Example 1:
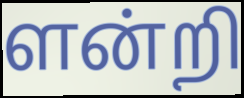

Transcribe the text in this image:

ளன்றி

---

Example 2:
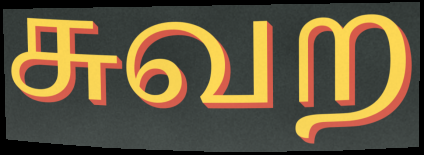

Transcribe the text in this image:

சுவற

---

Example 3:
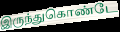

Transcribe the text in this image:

இருந்துகொண்டே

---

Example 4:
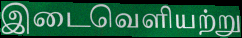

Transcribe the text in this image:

இடைவெளியற்று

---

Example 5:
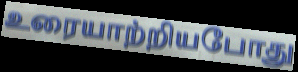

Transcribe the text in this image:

உரையாற்றியபோது